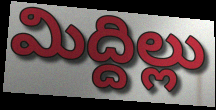
మిద్దిల్లు